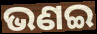
ଭଣଇ